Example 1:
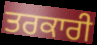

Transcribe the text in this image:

ਤਰਕਾਰੀ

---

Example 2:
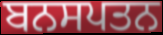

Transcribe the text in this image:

ਬਨਸਪਤਨ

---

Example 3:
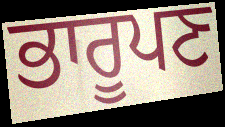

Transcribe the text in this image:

ਭਾਰੂਪਣ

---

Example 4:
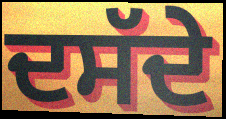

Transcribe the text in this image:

ਦਸੱਦੇ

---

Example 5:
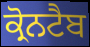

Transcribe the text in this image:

ਕ੍ਰੋਨਟੈਬ